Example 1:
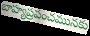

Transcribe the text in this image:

బాహ్యప్రపంచమునకు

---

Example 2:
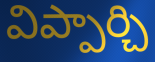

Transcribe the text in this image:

విప్పార్చి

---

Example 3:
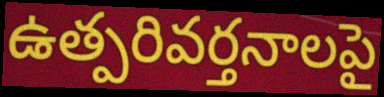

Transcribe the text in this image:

ఉత్పరివర్తనాలపై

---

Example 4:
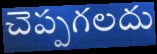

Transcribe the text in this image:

చెప్పగలదు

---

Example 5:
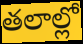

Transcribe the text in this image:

తలాల్లో